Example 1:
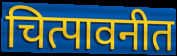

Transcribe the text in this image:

चित्पावनीत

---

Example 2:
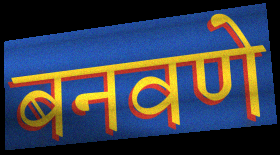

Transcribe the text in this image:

बनवणे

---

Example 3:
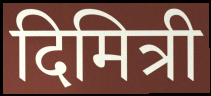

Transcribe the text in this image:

दिमित्री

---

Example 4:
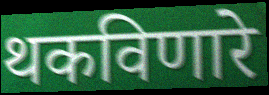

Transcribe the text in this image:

थकविणारे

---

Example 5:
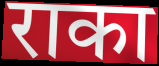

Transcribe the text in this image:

राका